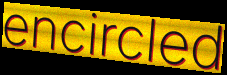
encircled